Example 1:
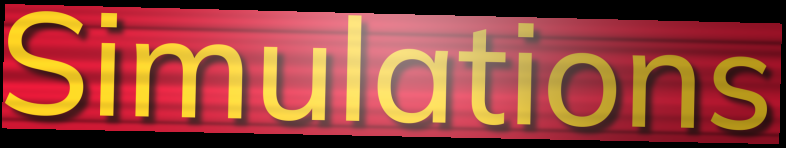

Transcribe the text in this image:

Simulations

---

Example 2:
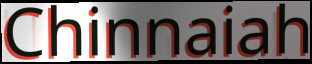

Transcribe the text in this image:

Chinnaiah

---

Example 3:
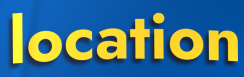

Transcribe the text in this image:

location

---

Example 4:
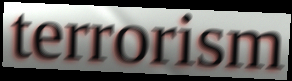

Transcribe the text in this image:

terrorism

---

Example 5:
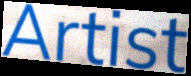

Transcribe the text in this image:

Artist